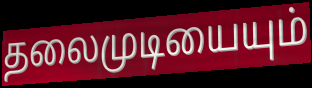
தலைமுடியையும்